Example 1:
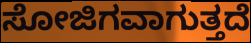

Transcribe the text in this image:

ಸೋಜಿಗವಾಗುತ್ತದೆ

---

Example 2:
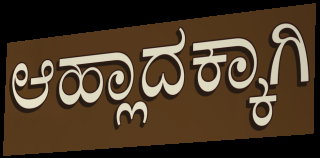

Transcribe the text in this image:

ಆಹ್ಲಾದಕ್ಕಾಗಿ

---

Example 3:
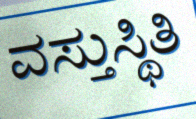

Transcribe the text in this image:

ವಸ್ತುಸ್ಥಿತಿ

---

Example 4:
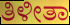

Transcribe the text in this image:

ತಿಳೀತಾ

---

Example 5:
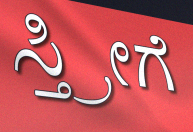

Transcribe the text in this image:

ಸ್ತ್ರೀಗೆ